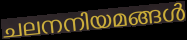
ചലനനിയമങ്ങൾ